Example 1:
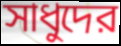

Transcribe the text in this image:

সাধুদের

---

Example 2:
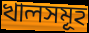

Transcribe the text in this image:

খালসমূহ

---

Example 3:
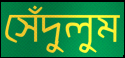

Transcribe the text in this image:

সেঁদুলুম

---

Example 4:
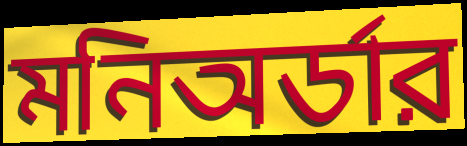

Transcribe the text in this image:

মনিঅর্ডার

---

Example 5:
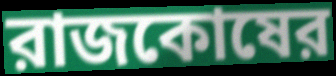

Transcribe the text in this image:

রাজকোষের